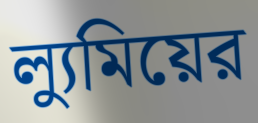
ল্যুমিয়ের